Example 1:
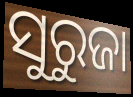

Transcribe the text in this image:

ସୁରୁଜା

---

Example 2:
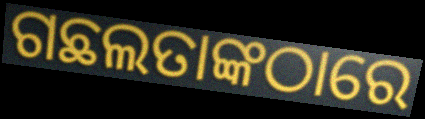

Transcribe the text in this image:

ଗଛଲତାଙ୍କଠାରେ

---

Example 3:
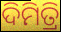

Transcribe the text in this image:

ଦିମିତ୍ରି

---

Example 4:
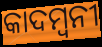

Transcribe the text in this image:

କାଦମ୍ୱନୀ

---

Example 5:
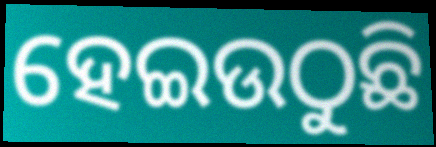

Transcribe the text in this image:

ହେଇଉଠୁଛି